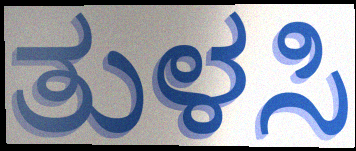
ತುಳಸಿ